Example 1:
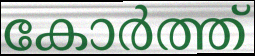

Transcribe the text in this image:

കോർത്ത്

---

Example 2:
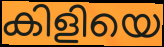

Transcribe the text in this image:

കിളിയെ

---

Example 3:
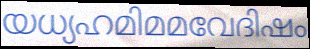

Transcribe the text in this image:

യധ്യഹമിമമവേദിഷം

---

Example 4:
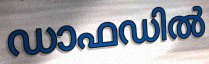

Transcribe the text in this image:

ഡാഫഡിൽ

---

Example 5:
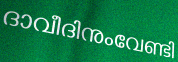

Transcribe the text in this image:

ദാവീദിനുംവേണ്ടി